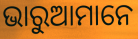
ଭାରୁଆମାନେ